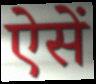
ऐसें